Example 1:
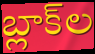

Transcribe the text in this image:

బ్లాక్‌ల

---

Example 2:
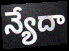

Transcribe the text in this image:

న్యేదా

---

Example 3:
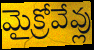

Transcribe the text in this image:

మైక్రోవేవ్లు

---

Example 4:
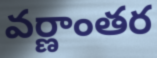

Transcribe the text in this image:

వర్ణాంతర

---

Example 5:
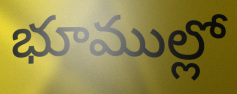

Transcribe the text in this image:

భూముల్లో